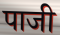
पाजी